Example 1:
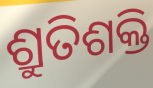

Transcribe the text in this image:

ଶ୍ରୁତିଶକ୍ତି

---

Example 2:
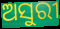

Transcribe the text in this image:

ଅସୁରୀ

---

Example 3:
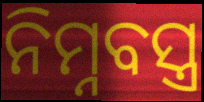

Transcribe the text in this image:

ନିମ୍ନବସ୍ତ୍ର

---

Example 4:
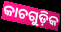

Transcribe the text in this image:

କାଚଗୁଡ଼ିକ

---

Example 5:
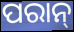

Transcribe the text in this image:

ପରାନ୍